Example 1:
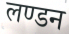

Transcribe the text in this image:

लण्डन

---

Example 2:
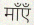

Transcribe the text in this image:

माँएँ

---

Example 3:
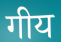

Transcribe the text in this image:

गीय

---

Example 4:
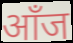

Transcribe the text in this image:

आँज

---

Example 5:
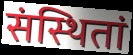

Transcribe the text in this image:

संस्थितां